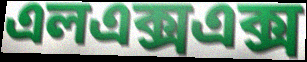
এলএক্সএক্স